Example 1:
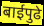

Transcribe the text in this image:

बाईपुढे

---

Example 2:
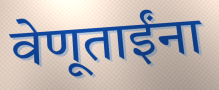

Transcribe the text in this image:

वेणूताईंना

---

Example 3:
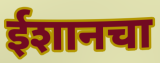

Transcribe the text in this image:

ईशानचा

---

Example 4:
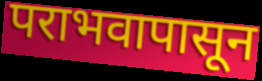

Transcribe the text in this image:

पराभवापासून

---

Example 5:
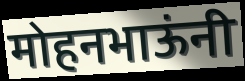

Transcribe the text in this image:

मोहनभाऊंनी